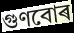
গুণবোৰ